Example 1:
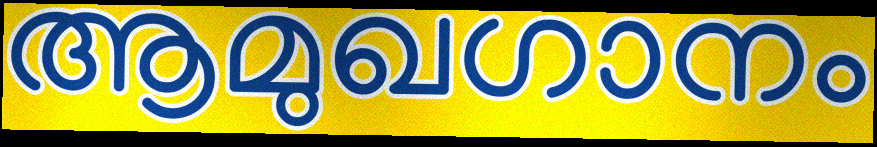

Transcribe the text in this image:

ആമുഖഗാനം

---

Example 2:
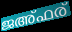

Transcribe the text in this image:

ജഅ്ഫര്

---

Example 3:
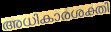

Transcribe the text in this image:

അധികാരശക്തി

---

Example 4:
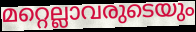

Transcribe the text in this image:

മറ്റെല്ലാവരുടെയും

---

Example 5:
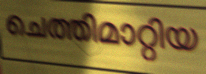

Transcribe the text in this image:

ചെത്തിമാറ്റിയ